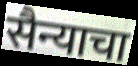
सैन्याचा